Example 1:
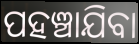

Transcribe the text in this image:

ପହଞ୍ଚାଯିବା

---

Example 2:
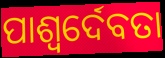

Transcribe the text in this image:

ପାଶ୍ୱର୍ଦେବତା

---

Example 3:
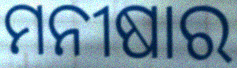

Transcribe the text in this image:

ମନୀଷାର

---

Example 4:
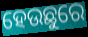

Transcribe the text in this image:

ହେଉଛୁରେ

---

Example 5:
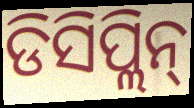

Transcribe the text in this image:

ଡିସିପ୍ଲିନ୍